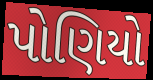
પોણિયો